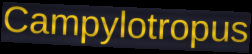
Campylotropus